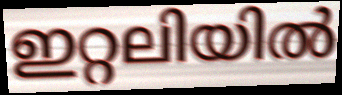
ഇറ്റലിയിൽ